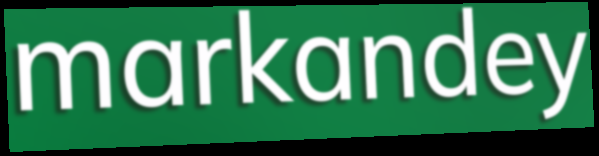
markandey